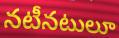
నటీనటులూ